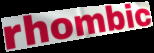
rhombic